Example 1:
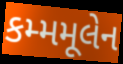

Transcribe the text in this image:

કમ્મમૂલેન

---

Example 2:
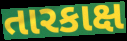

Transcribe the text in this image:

તારકાક્ષ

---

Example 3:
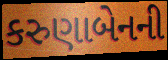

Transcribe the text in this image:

કરુણાબેનની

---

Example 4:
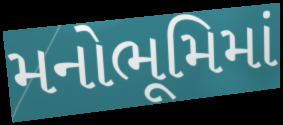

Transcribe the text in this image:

મનોભૂમિમાં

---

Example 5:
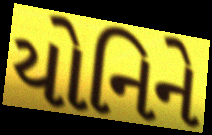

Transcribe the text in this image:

યોનિને